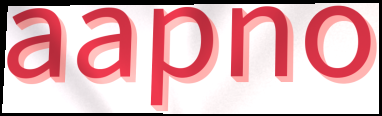
aapno